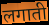
लगाती